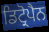
ਡਿਟ੍ਰੋਪੈਨ